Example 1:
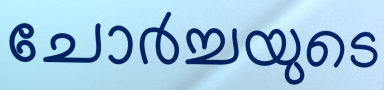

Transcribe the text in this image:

ചോർച്ചയുടെ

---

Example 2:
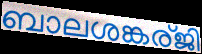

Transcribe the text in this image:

ബാലശങ്കര്ജി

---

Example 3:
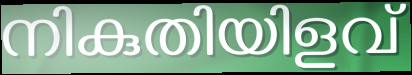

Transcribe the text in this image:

നികുതിയിളവ്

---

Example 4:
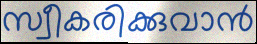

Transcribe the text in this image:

സ്വീകരിക്കുവാൻ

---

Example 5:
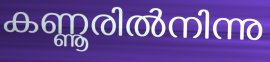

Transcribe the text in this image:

കണ്ണൂരിൽനിന്നു